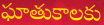
ఘాతుకాలకు